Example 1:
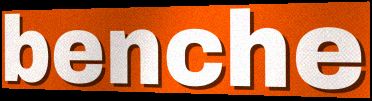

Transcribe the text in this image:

benche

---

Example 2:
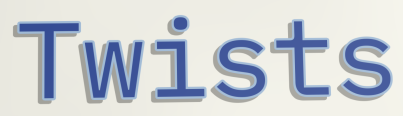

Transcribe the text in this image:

Twists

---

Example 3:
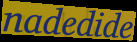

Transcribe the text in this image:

nadedide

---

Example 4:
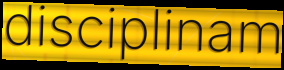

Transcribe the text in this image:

disciplinam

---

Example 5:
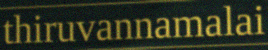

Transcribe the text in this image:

thiruvannamalai